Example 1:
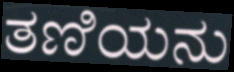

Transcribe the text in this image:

ತಣಿಯನು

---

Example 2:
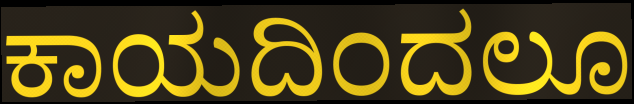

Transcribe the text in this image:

ಕಾಯದಿಂದಲೂ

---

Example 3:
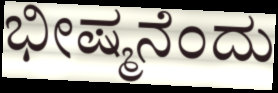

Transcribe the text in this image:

ಭೀಷ್ಮನೆಂದು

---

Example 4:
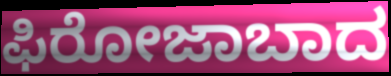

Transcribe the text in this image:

ಫಿರೋಜಾಬಾದ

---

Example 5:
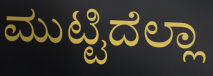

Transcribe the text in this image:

ಮುಟ್ಟಿದೆಲ್ಲಾ